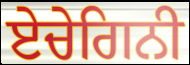
ਏਚੇਗਿਨੀ